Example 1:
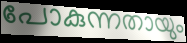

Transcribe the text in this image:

പോകുന്നതായും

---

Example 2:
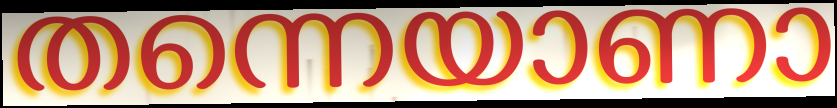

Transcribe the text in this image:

തന്നെയാണാ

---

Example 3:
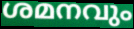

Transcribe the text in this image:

ശമനവും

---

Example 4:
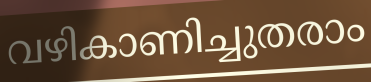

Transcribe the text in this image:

വഴികാണിച്ചുതരാം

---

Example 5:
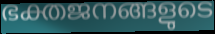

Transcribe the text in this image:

ഭക്തജനങ്ങളുടെ